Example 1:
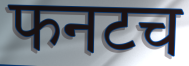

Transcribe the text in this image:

फनटच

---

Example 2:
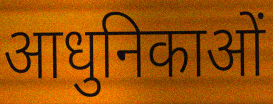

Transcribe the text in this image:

आधुनिकाओं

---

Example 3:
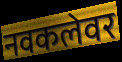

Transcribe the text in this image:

नवकलेवर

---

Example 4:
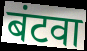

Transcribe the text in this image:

बंटवा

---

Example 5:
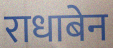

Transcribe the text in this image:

राधाबेन